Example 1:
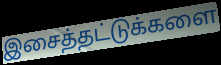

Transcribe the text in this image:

இசைத்தட்டுக்களை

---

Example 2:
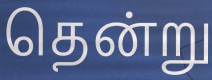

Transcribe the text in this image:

தென்று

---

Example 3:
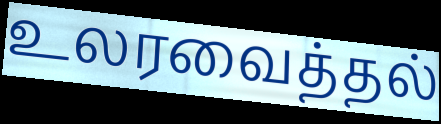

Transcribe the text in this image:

உலரவைத்தல்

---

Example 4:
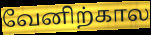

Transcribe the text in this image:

வேனிற்கால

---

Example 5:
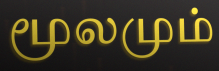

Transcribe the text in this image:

மூலமும்